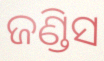
ଜଣ୍ଡିସ